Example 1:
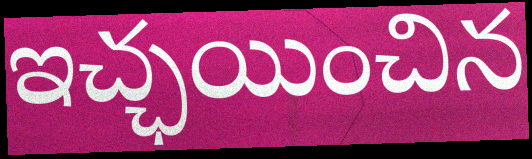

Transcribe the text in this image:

ఇచ్ఛయించిన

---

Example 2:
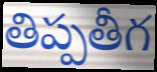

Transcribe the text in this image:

తిప్పతీగ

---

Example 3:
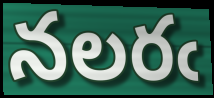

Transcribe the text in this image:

నలరఁ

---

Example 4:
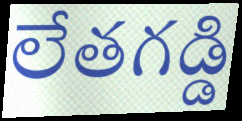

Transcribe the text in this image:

లేతగడ్డి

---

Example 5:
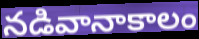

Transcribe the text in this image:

నడివానాకాలం